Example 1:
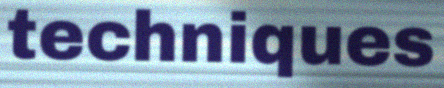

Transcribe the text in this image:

techniques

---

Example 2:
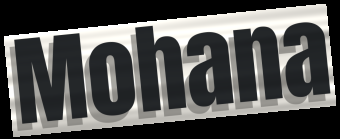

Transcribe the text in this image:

Mohana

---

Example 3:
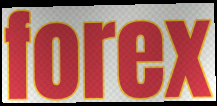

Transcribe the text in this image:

forex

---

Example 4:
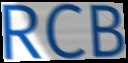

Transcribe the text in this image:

RCB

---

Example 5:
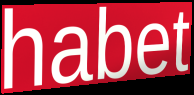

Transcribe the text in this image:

habet